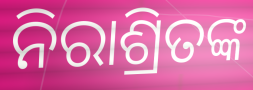
ନିରାଶ୍ରିତଙ୍କ